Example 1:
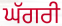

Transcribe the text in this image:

ਘੱਗਰੀ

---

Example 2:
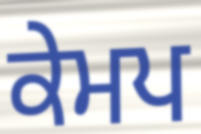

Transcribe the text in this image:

ਕੇਮਪ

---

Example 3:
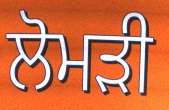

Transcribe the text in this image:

ਲੋਮੜੀ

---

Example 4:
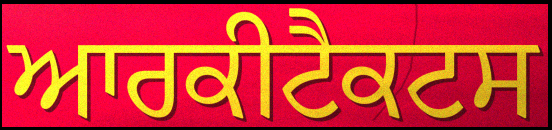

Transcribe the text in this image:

ਆਰਕੀਟੈਕਟਸ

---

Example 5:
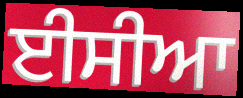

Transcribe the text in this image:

ਈਸੀਆ